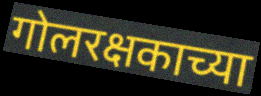
गोलरक्षकाच्या